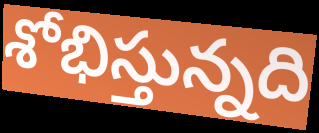
శోభిస్తున్నది